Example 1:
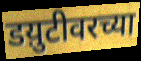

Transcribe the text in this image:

डय़ुटीवरच्या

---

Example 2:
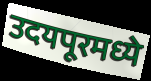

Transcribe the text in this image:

उदयपूरमध्ये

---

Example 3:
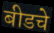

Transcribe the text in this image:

बीडचे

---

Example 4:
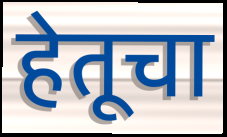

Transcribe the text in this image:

हेतूचा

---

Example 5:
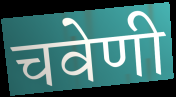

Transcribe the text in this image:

चवेणी